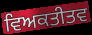
ਵਿਅਕਤੀਤਵ